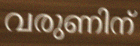
വരുണിന്